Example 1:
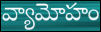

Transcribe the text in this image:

వ్యామోహం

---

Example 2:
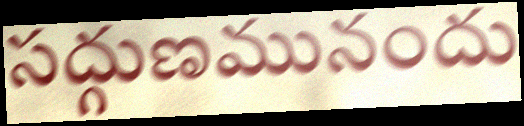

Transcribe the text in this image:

సద్గుణమునందు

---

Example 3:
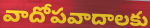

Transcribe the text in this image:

వాదోపవాదాలకు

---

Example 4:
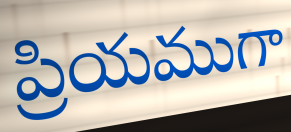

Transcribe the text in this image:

ప్రియముగా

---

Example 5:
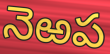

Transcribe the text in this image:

నెఱప